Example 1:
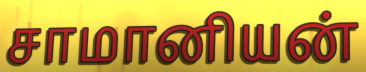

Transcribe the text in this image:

சாமானியன்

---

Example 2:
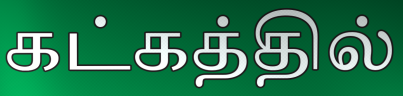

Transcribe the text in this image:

கட்கத்தில்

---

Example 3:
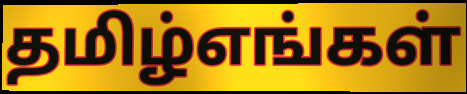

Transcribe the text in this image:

தமிழ்எங்கள்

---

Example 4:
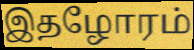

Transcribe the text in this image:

இதழோரம்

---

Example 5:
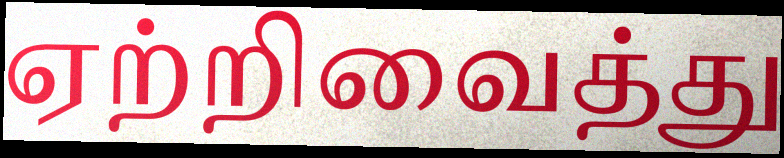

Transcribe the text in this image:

ஏற்றிவைத்து